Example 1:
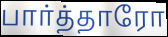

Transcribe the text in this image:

பார்த்தாரோ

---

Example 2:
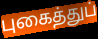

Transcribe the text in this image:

புகைத்துப்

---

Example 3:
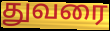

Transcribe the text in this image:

துவரை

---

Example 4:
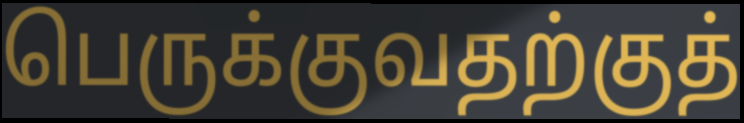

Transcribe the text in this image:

பெருக்குவதற்குத்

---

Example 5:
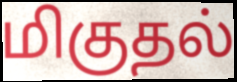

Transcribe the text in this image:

மிகுதல்